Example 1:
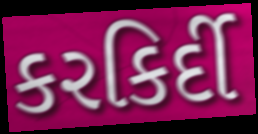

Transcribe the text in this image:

કરકિર્દી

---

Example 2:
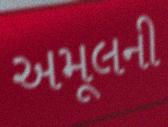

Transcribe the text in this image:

અમૂલની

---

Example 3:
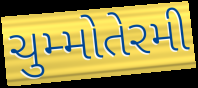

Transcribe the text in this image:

ચુમ્મોતેરમી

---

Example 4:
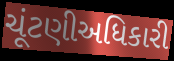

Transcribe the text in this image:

ચૂંટણીઅધિકારી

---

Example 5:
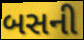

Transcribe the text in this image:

બસની